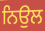
ਨਿਉਲ